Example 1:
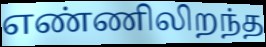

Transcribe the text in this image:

எண்ணிலிறந்த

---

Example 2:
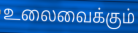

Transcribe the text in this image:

உலைவைக்கும்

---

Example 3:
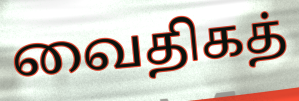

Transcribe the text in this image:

வைதிகத்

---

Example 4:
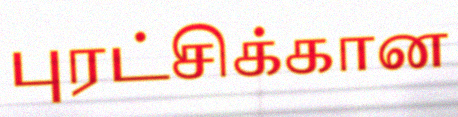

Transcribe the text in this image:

புரட்சிக்கான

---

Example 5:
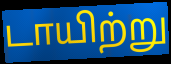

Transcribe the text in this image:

டாயிற்று